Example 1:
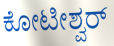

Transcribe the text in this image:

ಕೋಟೀಶ್ವರ್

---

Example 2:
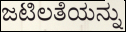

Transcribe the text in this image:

ಜಟಿಲತೆಯನ್ನು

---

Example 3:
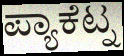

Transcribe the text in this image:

ಪ್ಯಾಕೆಟ್ನ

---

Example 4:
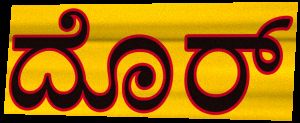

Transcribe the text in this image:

ದೊರ್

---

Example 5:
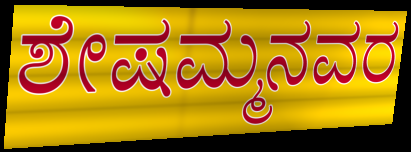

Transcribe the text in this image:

ಶೇಷಮ್ಮನವರ